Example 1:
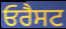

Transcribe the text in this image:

ਓਰੈਸਟ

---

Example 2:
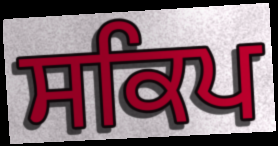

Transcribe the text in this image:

ਸਕਿਪ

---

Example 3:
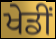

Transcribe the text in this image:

ਖੇਡੀਂ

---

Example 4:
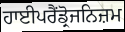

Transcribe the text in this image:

ਹਾਈਪਰੈਂਡ੍ਰੋਜਨਿਜ਼ਮ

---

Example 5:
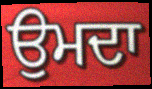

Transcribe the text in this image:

ਉਮਦਾ